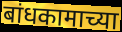
बांधकामाच्या